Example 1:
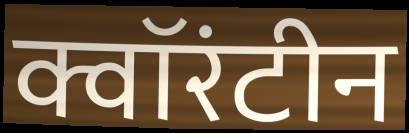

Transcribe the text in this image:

क्वॉरंटीन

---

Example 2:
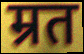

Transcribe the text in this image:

म्रत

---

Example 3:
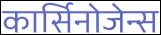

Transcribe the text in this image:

कार्सिनोजेन्स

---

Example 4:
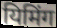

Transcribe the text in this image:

यिमिंग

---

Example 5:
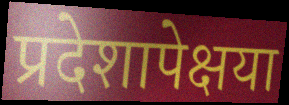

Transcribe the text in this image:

प्रदेशापेक्षया